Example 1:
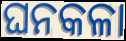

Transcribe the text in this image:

ଘନକଳା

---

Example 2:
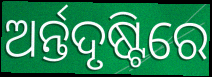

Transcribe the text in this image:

ଅର୍ନ୍ତଦୃଷ୍ଟିରେ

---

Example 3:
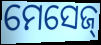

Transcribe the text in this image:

ମେସେଜ୍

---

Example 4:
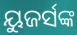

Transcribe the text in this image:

ୟୁଜର୍ସଙ୍କ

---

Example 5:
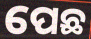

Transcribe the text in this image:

ପେଛ